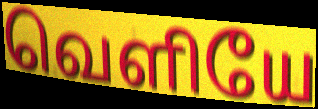
வெளியே